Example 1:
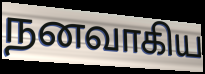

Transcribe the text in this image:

நனவாகிய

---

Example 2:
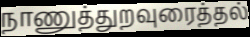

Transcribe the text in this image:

நாணுத்துறவுரைத்தல்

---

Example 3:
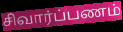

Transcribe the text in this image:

சிவார்ப்பணம்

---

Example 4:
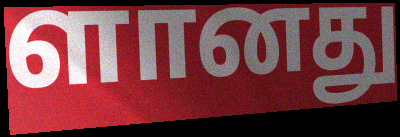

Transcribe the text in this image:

ளானது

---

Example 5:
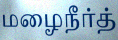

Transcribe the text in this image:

மழைநீர்த்